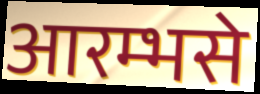
आरम्भसे